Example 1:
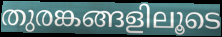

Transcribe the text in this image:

തുരങ്കങ്ങളിലൂടെ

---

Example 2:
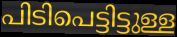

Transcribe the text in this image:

പിടിപെട്ടിട്ടുള്ള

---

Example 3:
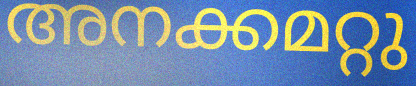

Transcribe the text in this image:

അനക്കമറ്റു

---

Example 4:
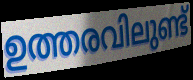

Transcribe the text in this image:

ഉത്തരവിലുണ്ട്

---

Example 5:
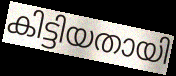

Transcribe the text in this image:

കിട്ടിയതായി